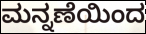
ಮನ್ನಣೆಯಿಂದ